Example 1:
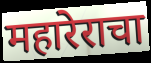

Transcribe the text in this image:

महारेराचा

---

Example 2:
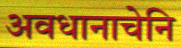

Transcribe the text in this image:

अवधानाचेनि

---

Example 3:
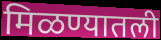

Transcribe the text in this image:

मिळण्यातली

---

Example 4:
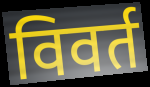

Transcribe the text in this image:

विवर्त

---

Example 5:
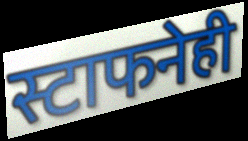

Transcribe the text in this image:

स्टाफनेही